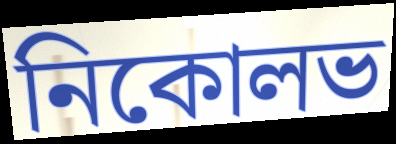
নিকোলভ